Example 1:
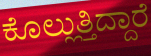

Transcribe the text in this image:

ಕೊಲ್ಲುತ್ತಿದ್ದಾರೆ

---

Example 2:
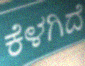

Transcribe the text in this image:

ಕೆಳಗಿದೆ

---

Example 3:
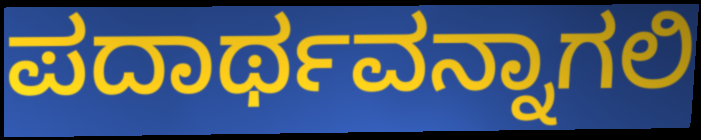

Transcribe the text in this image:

ಪದಾರ್ಥವನ್ನಾಗಲಿ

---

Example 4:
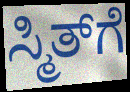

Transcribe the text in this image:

ಸ್ಮಿತ್‌ಗೆ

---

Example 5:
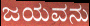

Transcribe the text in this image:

ಜಯವನು